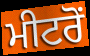
ਮੀਟਰੋਂ